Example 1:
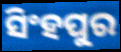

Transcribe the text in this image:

ସିଂହପୁର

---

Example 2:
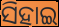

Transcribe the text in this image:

ସିହାଇ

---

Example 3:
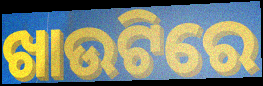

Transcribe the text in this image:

ଖାଉଟିରେ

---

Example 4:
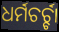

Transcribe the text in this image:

ଧର୍ମଚର୍ଚ୍ଚା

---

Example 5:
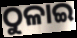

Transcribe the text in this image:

ଠୁଳାଇ